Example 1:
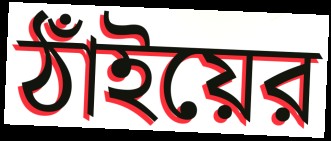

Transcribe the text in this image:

ঠাঁইয়ের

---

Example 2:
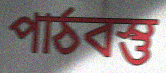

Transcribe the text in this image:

পাঠবস্তু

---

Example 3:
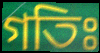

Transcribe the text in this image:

গতিঃ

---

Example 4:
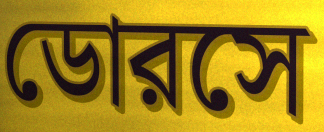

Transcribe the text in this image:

ডোরসে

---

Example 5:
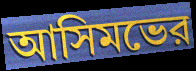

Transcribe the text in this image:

আসিমভের